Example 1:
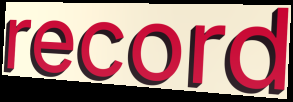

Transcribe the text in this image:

record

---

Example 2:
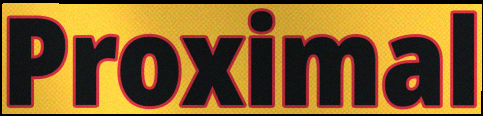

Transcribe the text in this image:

Proximal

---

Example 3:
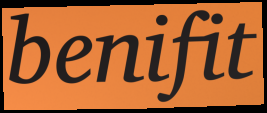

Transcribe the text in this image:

benifit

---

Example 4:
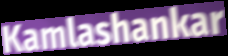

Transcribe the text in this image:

Kamlashankar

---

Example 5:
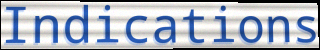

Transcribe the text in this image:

Indications